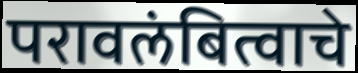
परावलंबित्वाचे